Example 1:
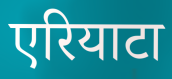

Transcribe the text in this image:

एरियाटा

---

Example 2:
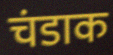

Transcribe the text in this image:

चंडाक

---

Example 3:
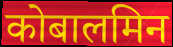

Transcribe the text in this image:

कोबालमिन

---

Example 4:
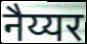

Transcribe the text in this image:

नैय्यर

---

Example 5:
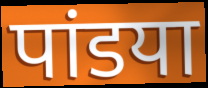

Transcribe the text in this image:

पांडया